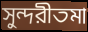
সুন্দরীতমা